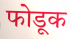
फोडूक